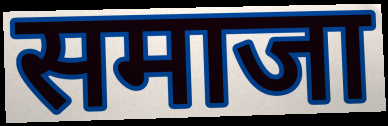
समाजा